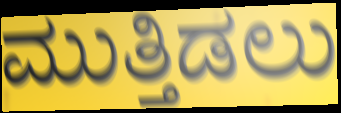
ಮುತ್ತಿಡಲು